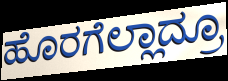
ಹೊರಗೆಲ್ಲಾದ್ರೂ